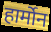
हार्मोन